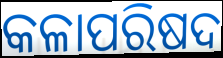
କଳାପରିଷଦ